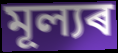
মূল্যৰ